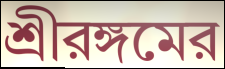
শ্রীরঙ্গমের